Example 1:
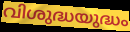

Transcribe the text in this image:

വിശുദ്ധയുദ്ധം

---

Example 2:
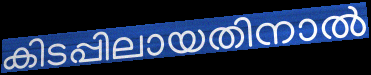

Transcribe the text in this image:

കിടപ്പിലായതിനാൽ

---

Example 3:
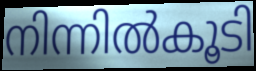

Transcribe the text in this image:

നിന്നിൽകൂടി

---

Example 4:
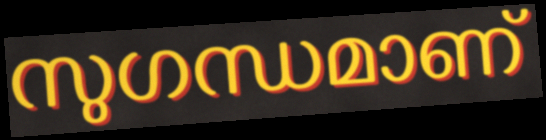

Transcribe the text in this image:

സുഗന്ധമാണ്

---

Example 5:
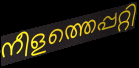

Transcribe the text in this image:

നീളത്തെപ്പറ്റി